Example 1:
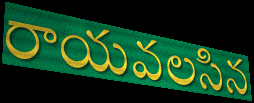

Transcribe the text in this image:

రాయవలసిన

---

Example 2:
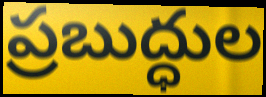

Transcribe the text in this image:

ప్రబుద్ధుల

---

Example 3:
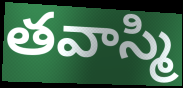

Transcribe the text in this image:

తవాస్మి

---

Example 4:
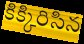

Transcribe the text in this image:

కిక్కిరిసిన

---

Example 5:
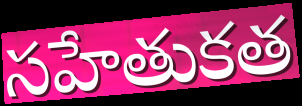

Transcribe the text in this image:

సహేతుకత